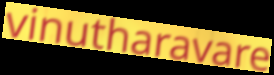
vinutharavare